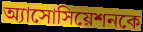
অ্যাসোসিয়েশনকে